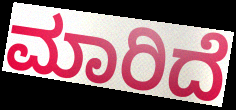
ಮಾರಿದೆ